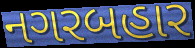
નગરબહાર